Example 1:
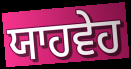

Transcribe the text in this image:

ਯਾਹਵੇਹ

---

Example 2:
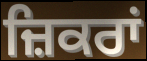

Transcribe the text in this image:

ਜ਼ਿਕਰਾਂ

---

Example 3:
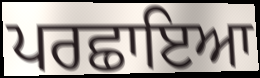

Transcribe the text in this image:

ਪਰਛਾਇਆ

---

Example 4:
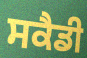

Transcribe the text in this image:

ਸਕੈਡੀ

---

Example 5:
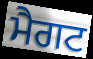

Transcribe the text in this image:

ਮੈਗਟ